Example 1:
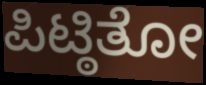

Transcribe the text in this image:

ಪಿಟ್ಠಿತೋ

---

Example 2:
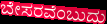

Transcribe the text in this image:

ಬೇಸರವೆಂಬುದು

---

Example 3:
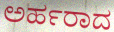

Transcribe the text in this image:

ಅರ್ಹರಾದ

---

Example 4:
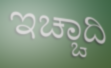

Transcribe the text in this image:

ಇಚ್ಚಾದಿ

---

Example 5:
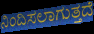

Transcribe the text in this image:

ನಿಂದಿಸಲಾಗುತ್ತದೆ